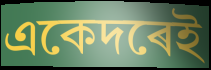
একেদৰেই